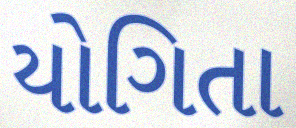
યોગિતા